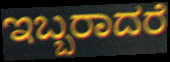
ಇಬ್ಬರಾದರೆ